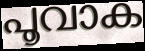
പൂവാക